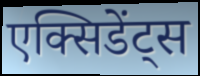
एक्सिडेंट्स